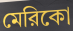
মেরিকো